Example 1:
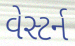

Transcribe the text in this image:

વેસ્ટર્ન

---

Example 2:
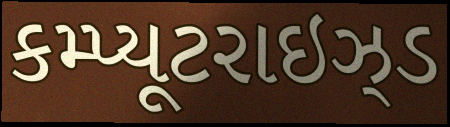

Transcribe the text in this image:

કમ્પ્યૂટરાઇઝ્ડ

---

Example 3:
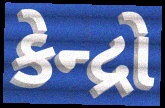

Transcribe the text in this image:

કેન્દ્રો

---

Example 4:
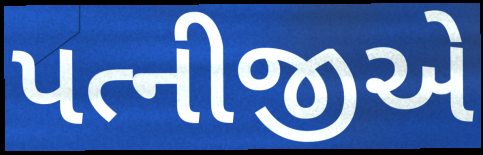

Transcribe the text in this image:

પત્નીજીએ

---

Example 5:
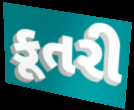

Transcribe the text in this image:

કૂતરી